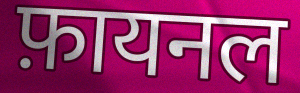
फ़ायनल